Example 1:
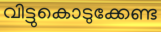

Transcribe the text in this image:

വിട്ടുകൊടുക്കേണ്ട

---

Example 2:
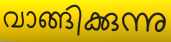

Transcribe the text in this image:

വാങ്ങിക്കുന്നു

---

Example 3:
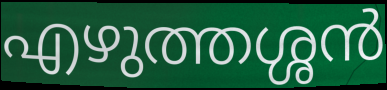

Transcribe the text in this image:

എഴുത്തശ്ശൻ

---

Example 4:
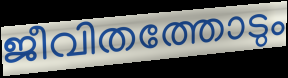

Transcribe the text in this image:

ജീവിതത്തോടും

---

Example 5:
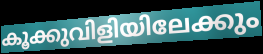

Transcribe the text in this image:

കൂക്കുവിളിയിലേക്കും